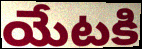
యేటకి